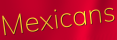
Mexicans